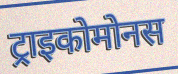
ट्राइकोमोनस